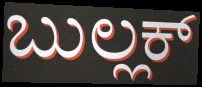
ಬುಲ್ಲಕ್